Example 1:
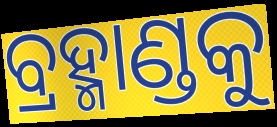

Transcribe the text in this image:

ବ୍ରହ୍ମାଣ୍ଡକୁ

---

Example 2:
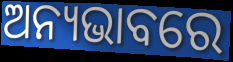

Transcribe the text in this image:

ଅନ୍ୟଭାବରେ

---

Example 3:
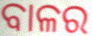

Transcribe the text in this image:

ବାଳର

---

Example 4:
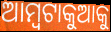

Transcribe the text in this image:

ଆମ୍ବଟାକୁଆକୁ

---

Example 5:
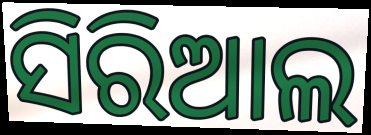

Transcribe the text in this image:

ସିରିଆଲ